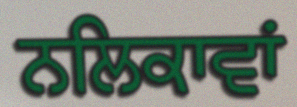
ਨਲਿਕਾਵਾਂ